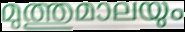
മുത്തുമാലയും